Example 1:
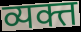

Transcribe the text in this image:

व्यक्त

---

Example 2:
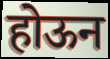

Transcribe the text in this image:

होऊन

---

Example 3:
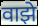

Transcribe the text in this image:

वाझे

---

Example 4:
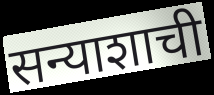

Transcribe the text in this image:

सन्याशाची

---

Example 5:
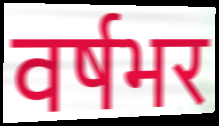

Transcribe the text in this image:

वर्षभर